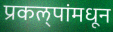
प्रकल्पांमधून